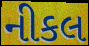
નીકલ